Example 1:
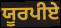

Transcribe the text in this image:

ਯੂਰਪੀਏ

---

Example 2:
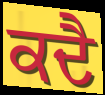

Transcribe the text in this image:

ਕਦੈ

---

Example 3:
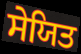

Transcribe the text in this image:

ਸੇਯਿਤ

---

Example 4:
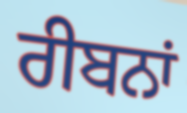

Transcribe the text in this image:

ਰੀਬਨਾਂ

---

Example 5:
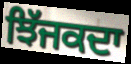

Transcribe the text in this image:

ਝਿੱਜਕਦਾ